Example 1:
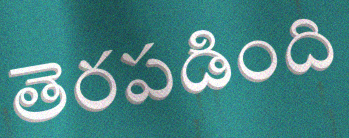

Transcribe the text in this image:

తెరపడింది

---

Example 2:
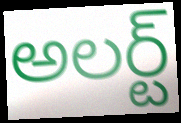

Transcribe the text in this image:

అలర్ట్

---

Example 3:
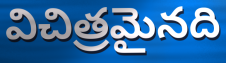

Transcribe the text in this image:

విచిత్రమైనది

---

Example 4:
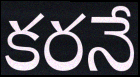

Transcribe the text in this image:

కరనే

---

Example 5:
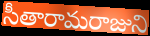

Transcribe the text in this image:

సీతారామరాజుని